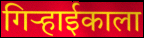
गिर्‍हाईकाला